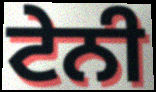
ਟੇਨੀ